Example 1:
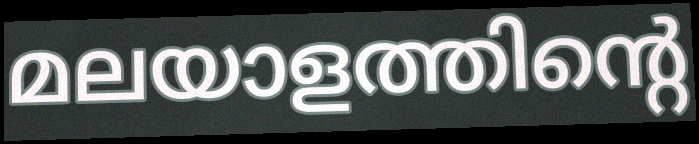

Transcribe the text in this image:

മലയാളത്തിന്റെ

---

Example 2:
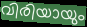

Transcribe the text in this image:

വിരിയായും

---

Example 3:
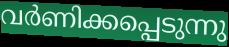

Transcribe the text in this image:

വർണിക്കപ്പെടുന്നു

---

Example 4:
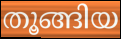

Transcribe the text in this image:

തൂങ്ങിയ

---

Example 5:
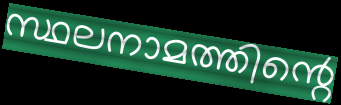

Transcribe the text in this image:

സ്ഥലനാമത്തിന്റെ